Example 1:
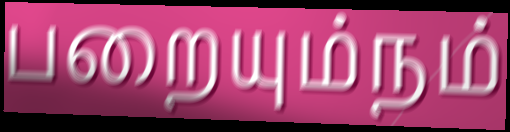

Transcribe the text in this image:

பறையும்நம்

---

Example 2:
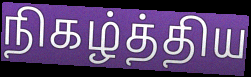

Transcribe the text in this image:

நிகழ்த்திய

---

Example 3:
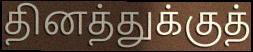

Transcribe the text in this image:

தினத்துக்குத்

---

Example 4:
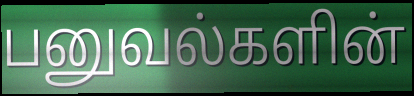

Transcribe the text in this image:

பனுவல்களின்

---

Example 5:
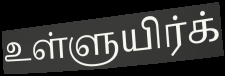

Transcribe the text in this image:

உள்ளுயிர்க்